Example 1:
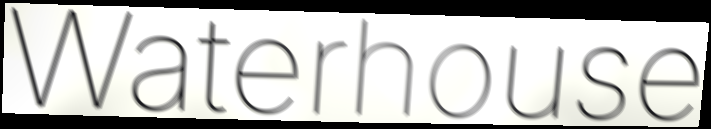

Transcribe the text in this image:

Waterhouse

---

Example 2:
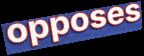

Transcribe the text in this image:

opposes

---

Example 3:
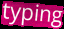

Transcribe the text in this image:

typing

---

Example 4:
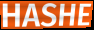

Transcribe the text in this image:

HASHE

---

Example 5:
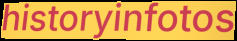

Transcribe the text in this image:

historyinfotos